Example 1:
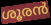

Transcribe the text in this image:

ശൂരൻ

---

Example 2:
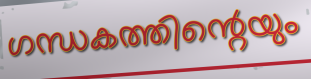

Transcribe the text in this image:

ഗന്ധകത്തിന്റെയും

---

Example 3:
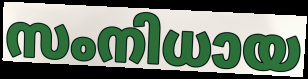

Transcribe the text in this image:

സംനിധായ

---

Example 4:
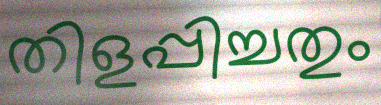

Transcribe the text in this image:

തിളപ്പിച്ചതും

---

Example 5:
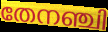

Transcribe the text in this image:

തേനഞ്ചി